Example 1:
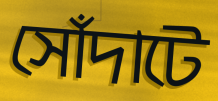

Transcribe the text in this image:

সোঁদাটে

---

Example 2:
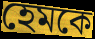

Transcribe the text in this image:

হেমকে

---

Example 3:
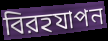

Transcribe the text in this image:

বিরহযাপন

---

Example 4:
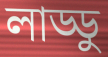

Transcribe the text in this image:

লাড্ডু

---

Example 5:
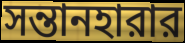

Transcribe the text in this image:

সন্তানহারার